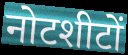
नोटशीटों